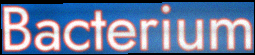
Bacterium